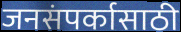
जनसंपर्कासाठी